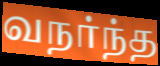
வநர்ந்த